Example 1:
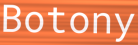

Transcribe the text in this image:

Botony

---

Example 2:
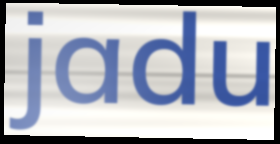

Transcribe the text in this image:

jadu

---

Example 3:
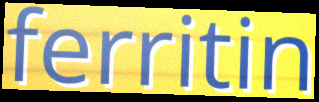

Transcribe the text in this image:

ferritin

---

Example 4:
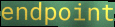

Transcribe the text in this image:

endpoint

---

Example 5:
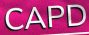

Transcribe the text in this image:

CAPD